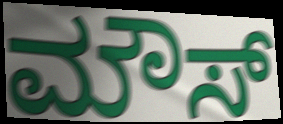
ಮೌಸ್